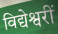
विद्येश्वरीं